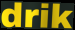
drik